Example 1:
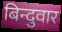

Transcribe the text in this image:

बिन्दुवार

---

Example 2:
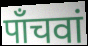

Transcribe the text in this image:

पाँचवां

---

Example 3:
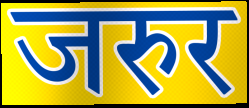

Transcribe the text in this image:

जरुर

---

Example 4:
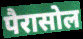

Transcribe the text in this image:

पैरासोल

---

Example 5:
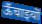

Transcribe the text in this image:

ऊँचाइयों